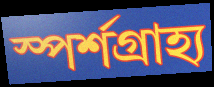
স্পর্শগ্রাহ্য